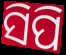
ସିପି